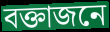
বক্তাজনে